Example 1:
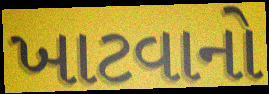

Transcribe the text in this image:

ખાટવાનો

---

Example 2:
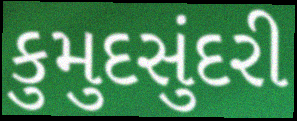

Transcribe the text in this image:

કુમુદસુંદરી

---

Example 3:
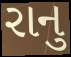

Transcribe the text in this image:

રાનુ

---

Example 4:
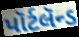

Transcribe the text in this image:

પૉર્ટલૅન્ડ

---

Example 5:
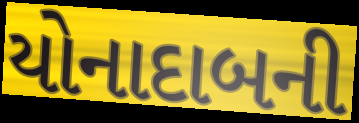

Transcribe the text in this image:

યોનાદાબની